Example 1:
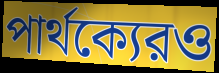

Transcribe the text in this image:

পার্থক্যেরও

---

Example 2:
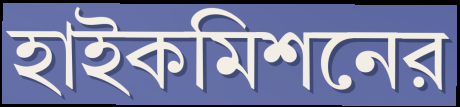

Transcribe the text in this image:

হাইকমিশনের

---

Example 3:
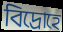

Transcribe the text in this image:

বিদ্রোহে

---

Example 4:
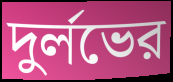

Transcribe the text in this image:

দুর্লভের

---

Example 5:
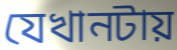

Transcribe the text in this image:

যেখানটায়